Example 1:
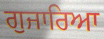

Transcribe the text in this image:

ਗੁਜਾਰਿਆ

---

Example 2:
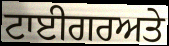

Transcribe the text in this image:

ਟਾਈਗਰਅਤੇ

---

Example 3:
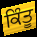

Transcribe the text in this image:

ਕਿੰਤੂ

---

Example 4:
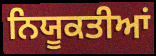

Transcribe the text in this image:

ਨਿਯੂਕਤੀਆਂ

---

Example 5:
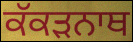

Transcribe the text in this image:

ਕੱਕੜਨਾਥ